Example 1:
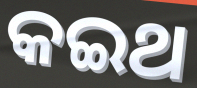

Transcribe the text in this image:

କଇଥ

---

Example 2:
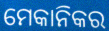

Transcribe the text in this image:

ମେକାନିକର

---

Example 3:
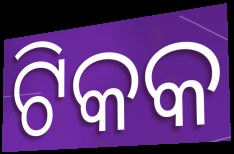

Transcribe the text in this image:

ଟିକକ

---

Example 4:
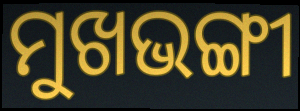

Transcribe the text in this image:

ମୁଖଭଙ୍ଗୀ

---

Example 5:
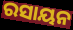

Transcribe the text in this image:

ରସାୟନ